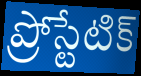
ప్రోస్టేటిక్